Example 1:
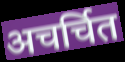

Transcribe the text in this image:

अचर्चित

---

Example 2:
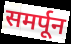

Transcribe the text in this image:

समर्पून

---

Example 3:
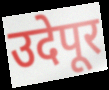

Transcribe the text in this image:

उदेपूर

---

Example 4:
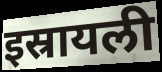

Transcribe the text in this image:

इस्रायली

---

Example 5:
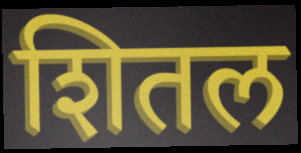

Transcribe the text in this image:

शितल